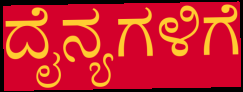
ದೈನ್ಯಗಳಿಗೆ